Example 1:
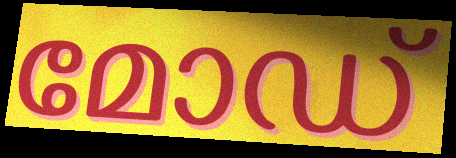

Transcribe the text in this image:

മോഡ്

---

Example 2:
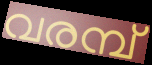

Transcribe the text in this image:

വരമ്പ്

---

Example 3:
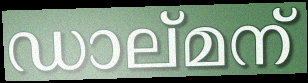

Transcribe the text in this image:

ഡാല്മന്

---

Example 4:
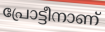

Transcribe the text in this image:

പ്രോട്ടീനാണ്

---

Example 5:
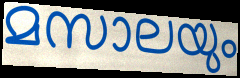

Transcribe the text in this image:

മസാലയും